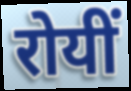
रोयीं